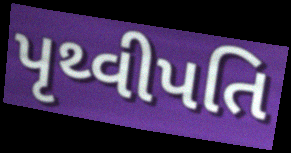
પૃથ્વીપતિ